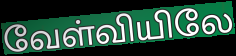
வேள்வியிலே